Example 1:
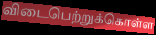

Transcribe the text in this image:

விடைபெற்றுக்கொள்ள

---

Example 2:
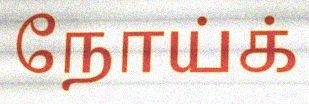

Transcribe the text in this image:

நோய்க்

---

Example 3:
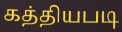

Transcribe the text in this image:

கத்தியபடி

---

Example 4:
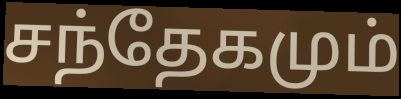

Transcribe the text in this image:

சந்தேகமும்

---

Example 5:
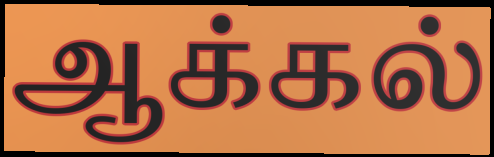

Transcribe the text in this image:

ஆக்கல்